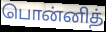
பொன்னித்